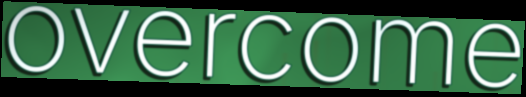
overcome